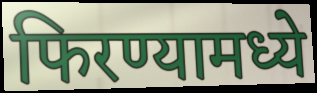
फिरण्यामध्ये